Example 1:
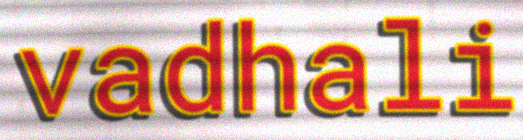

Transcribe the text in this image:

vadhali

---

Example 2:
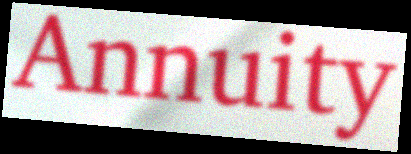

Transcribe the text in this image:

Annuity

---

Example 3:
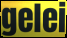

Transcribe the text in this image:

gelei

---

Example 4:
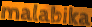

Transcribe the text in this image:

malabika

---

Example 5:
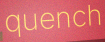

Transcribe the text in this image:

quench